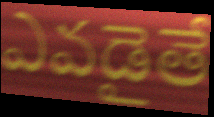
ఎవడైతే